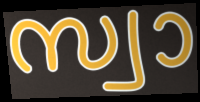
സ്വാ